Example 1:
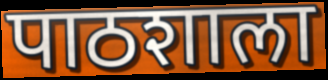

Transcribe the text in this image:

पाठशाला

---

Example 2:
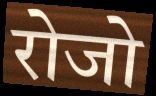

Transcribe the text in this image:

रोजो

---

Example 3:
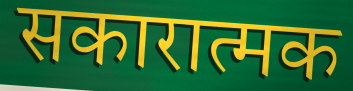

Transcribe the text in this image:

सकारात्मक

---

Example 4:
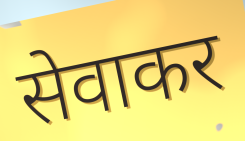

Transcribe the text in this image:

सेवाकर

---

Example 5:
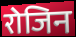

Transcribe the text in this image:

रोजिन